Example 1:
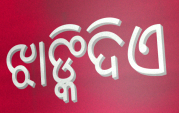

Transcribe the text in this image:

ଝାଙ୍କିଦିଏ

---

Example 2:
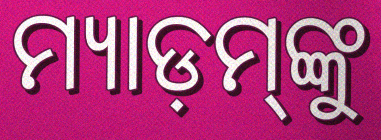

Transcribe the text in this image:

ମ୍ୟାଡ଼ମ୍‌ଙ୍କୁ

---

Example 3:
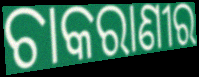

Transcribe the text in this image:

ଚାକରାଣୀର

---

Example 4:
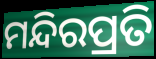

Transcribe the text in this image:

ମନ୍ଦିରପ୍ରତି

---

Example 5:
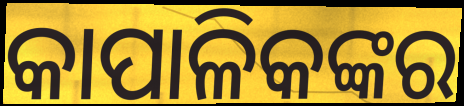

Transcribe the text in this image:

କାପାଳିକଙ୍କର